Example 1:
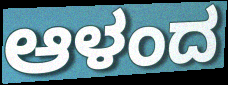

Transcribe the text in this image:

ಆಳಂದ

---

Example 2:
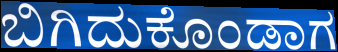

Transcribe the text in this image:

ಬಿಗಿದುಕೊಂಡಾಗ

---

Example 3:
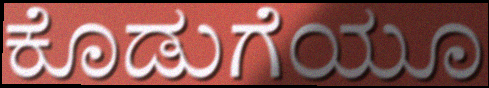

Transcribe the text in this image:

ಕೊಡುಗೆಯೂ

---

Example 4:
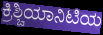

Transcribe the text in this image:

ಕ್ರಿಶ್ಚಿಯಾನಿಟಿಯ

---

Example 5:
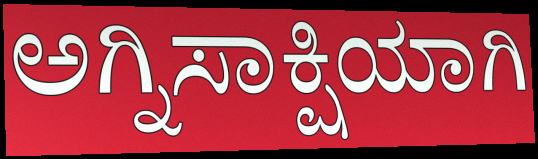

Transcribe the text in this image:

ಅಗ್ನಿಸಾಕ್ಷಿಯಾಗಿ